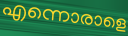
എന്നൊരാളെ